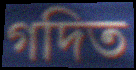
গদিত